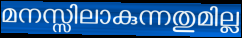
മനസ്സിലാകുന്നതുമില്ല